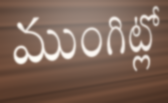
ముంగిట్లో